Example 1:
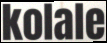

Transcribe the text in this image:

kolale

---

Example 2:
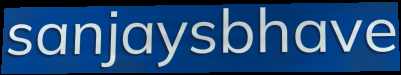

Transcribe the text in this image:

sanjaysbhave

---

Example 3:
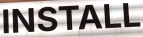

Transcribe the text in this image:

INSTALL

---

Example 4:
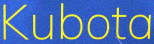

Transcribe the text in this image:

Kubota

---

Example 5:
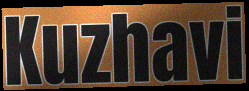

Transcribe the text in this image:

Kuzhavi